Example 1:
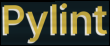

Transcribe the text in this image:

Pylint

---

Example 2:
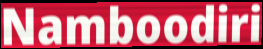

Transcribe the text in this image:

Namboodiri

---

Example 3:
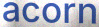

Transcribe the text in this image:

acorn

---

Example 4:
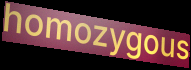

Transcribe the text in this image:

homozygous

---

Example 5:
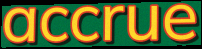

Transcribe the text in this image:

accrue